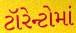
ટૉરેન્ટોમાં